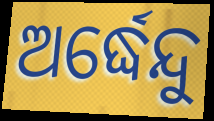
ଅର୍ଦ୍ଧେନ୍ଦୁ